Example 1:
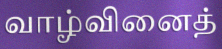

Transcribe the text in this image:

வாழ்வினைத்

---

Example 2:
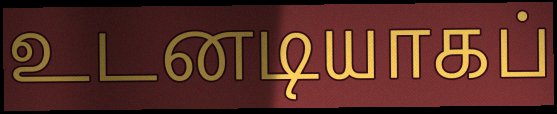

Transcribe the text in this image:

உடனடியாகப்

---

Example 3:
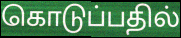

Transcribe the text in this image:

கொடுப்பதில்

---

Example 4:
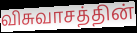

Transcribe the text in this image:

விசுவாசத்தின்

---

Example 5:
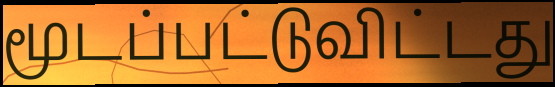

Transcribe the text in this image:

மூடப்பட்டுவிட்டது